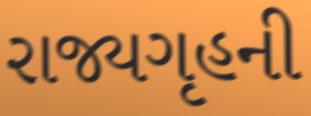
રાજ્યગૃહની